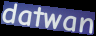
datwan